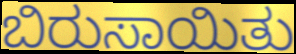
ಬಿರುಸಾಯಿತು